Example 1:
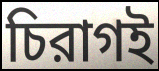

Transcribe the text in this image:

চিরাগই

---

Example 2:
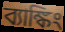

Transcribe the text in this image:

ব্যাঙ্কিং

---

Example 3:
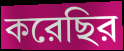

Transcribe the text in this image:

করেছির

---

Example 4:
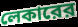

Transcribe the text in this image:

লেকারের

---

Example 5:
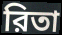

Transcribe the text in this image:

রিতা